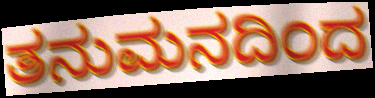
ತನುಮನದಿಂದ